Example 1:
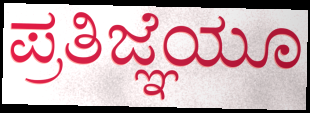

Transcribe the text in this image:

ಪ್ರತಿಜ್ಞೆಯೂ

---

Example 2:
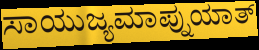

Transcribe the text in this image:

ಸಾಯುಜ್ಯಮಾಪ್ನುಯಾತ್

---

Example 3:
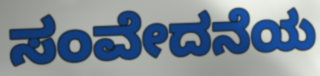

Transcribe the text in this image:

ಸಂವೇದನೆಯ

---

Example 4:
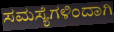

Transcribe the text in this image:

ಸಮಸ್ಯೆಗಳಿಂದಾಗಿ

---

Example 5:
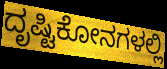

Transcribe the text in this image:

ದೃಷ್ಟಿಕೋನಗಳಲ್ಲಿ